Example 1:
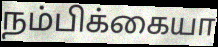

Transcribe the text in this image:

நம்பிக்கையா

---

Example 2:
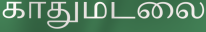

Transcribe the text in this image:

காதுமடலை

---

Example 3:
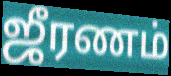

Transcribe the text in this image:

ஜீரணம்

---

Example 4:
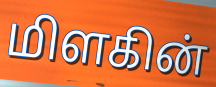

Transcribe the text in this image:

மிளகின்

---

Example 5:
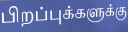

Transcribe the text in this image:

பிறப்புக்களுக்கு